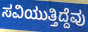
ಸವಿಯುತ್ತಿದ್ದೆವು